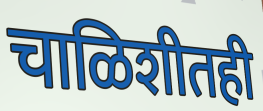
चाळिशीतही